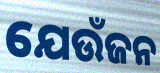
ଯେଉଁଜନ